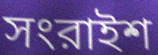
সংরাইশ